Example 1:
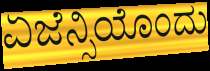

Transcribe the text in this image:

ಏಜೆನ್ಸಿಯೊಂದು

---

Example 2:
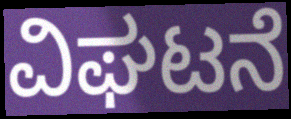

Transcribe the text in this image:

ವಿಘಟನೆ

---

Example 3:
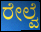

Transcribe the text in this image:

ರೇಲ್ವೆ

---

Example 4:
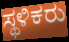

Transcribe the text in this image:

ಸ್ಥಳಿಕರು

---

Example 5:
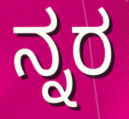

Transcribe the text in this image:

ನ್ನರ